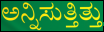
ಅನ್ನಿಸುತ್ತಿತ್ತು